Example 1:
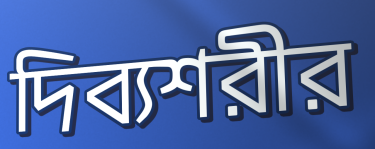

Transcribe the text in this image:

দিব্যশরীর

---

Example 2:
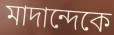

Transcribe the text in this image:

মাদান্দেকে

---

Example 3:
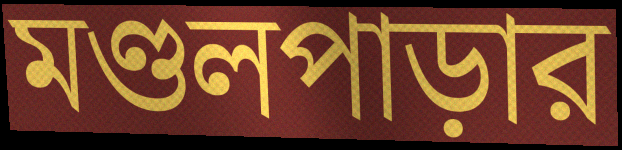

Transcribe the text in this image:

মণ্ডলপাড়ার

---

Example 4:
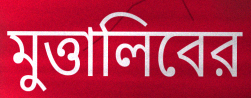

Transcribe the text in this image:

মুত্তালিবের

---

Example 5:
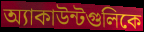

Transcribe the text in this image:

অ্যাকাউন্টগুলিকে